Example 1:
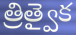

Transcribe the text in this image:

త్రిత్వైక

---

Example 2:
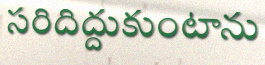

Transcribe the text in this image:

సరిదిద్దుకుంటాను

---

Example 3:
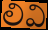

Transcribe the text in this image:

లివి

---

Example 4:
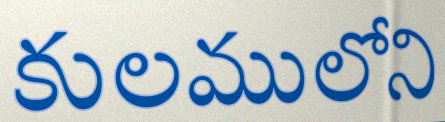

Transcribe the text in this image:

కులములోని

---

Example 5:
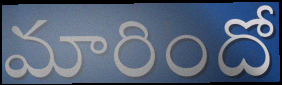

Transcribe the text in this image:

మారిందో